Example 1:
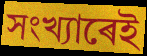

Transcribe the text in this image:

সংখ্যাৰেই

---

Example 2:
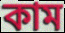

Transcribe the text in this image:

কাম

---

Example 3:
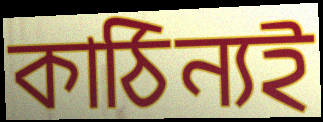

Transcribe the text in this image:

কাঠিন্যই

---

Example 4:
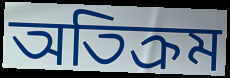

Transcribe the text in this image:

অতিক্ৰম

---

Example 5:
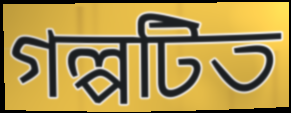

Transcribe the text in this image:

গল্পটিত